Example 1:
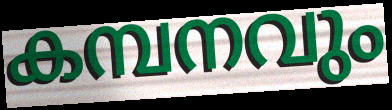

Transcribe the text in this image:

കമ്പനവും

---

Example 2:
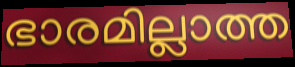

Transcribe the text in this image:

ഭാരമില്ലാത്ത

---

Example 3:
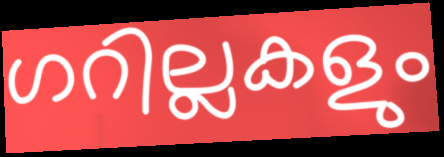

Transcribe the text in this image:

ഗറില്ലകളും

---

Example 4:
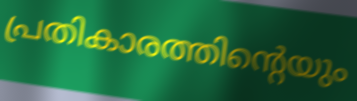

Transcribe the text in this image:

പ്രതികാരത്തിന്റെയും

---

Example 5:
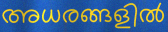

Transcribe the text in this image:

അധരങ്ങളിൽ